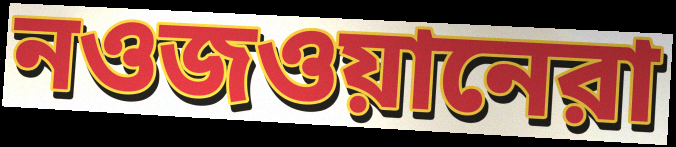
নওজওয়ানেরা